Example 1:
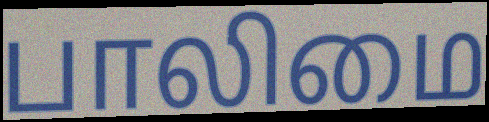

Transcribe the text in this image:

பாலிமை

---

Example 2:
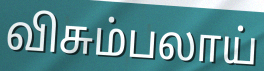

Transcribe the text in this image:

விசும்பலாய்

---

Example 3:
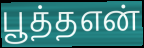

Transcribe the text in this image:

பூத்தஎன்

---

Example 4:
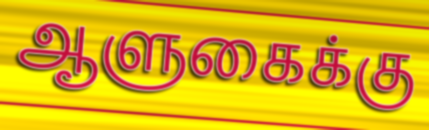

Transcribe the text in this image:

ஆளுகைக்கு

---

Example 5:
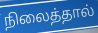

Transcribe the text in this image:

நிலைத்தால்